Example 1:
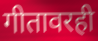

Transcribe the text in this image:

गीतावरही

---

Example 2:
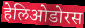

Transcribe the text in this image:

हेलिओडोरस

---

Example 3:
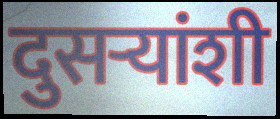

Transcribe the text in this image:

दुसर्‍यांशी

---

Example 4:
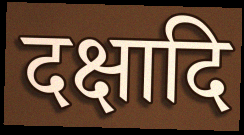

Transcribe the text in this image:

दक्षादि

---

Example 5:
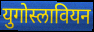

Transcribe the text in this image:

युगोस्लावियन